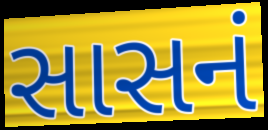
સાસનં